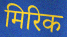
मिरिक